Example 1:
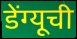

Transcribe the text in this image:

डेंग्यूची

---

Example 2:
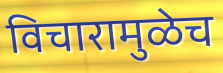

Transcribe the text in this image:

विचारामुळेच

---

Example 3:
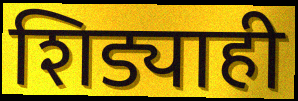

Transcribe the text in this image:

शिड्याही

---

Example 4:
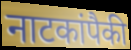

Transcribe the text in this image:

नाटकांपैकी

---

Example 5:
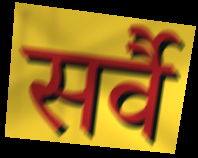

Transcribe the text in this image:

सर्वै